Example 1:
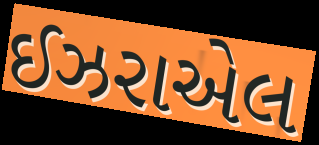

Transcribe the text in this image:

ઈઝરાએલ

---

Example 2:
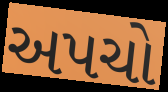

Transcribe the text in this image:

અપચો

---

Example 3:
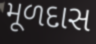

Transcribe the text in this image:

મૂળદાસ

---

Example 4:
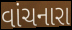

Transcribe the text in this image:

વાંચનારા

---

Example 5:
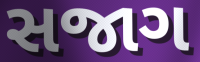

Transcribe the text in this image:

સજાગ